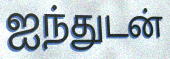
ஐந்துடன்